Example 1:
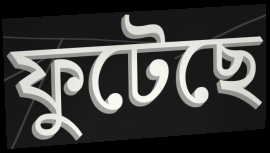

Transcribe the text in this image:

ফুটেছে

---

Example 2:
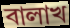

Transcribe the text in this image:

বালাখ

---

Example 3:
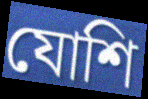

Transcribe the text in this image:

যোশি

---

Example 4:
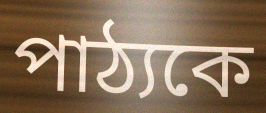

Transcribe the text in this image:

পাঠ্যকে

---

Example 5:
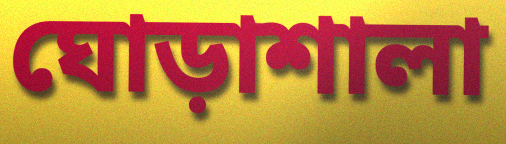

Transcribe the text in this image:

ঘোড়াশালা